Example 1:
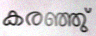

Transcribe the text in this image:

കരഞ്ഞു്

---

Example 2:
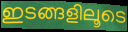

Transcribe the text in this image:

ഇടങ്ങളിലൂടെ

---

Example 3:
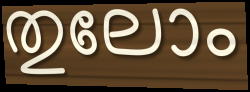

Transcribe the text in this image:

തുലോം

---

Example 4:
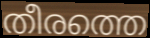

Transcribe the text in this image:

തീരത്തെ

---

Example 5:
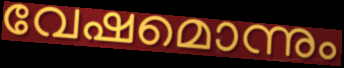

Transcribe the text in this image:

വേഷമൊന്നും